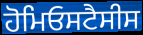
ਹੋਮਿਓਸਟੈਸੀਸ